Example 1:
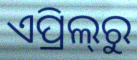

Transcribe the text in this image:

ଏପ୍ରିଲ୍‌ରୁ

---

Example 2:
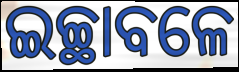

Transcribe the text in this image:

ଇଚ୍ଛାବଳେ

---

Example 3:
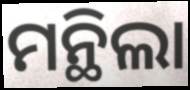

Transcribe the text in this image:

ମନ୍ଥିଲା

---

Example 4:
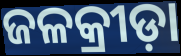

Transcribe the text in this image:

ଜଳକ୍ରୀଡ଼ା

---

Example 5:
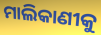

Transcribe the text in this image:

ମାଲିକାଣୀକୁ